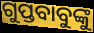
ଗୁପ୍ତବାବୁଙ୍କୁ